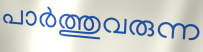
പാർത്തുവരുന്ന